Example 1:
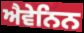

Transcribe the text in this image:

ਐਵੇਨਿਨ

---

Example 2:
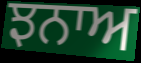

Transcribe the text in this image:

ਝਨਾਅ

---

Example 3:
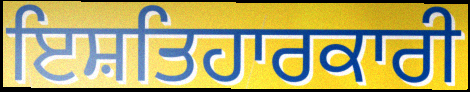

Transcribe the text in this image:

ਇਸ਼ਤਿਹਾਰਕਾਰੀ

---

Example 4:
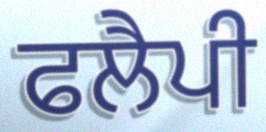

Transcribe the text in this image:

ਫਲੈਪੀ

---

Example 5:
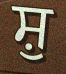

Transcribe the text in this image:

ਸ਼ੁ